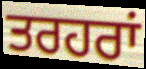
ਤਰਹਰਾਂ